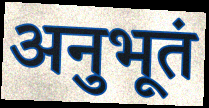
अनुभूतं